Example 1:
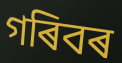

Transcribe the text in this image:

গৰিবৰ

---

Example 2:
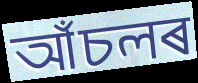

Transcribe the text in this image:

আঁচলৰ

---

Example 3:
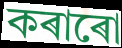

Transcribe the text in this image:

কৰাৰো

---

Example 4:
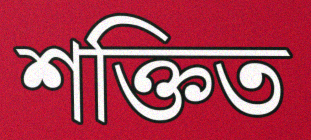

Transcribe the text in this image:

শক্তিত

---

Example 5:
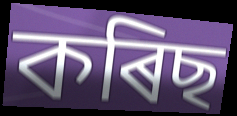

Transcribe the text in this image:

কৰিছ